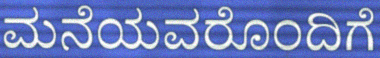
ಮನೆಯವರೊಂದಿಗೆ